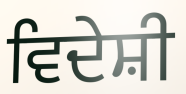
ਵਿਦੇਸ਼ੀ